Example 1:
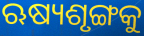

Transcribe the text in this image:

ଋଷ୍ୟଶୃଙ୍ଗକୁ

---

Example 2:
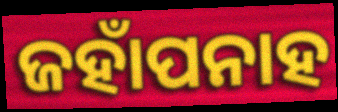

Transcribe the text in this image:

ଜହାଁପନାହ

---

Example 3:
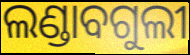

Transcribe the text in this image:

ଲଣ୍ଡାବଗୁଲୀ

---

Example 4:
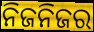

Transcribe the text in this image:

ନିଜନିଜର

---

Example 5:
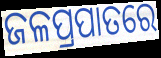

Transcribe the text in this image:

ଜଳପ୍ରପାତରେ